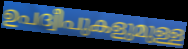
ഉപദ്വീപുകളുമുള്ള